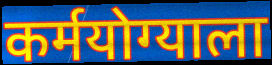
कर्मयोग्याला